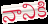
నానికి